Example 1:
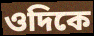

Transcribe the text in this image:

ওদিকে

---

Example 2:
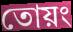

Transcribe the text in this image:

তোয়ং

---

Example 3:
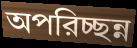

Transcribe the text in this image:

অপরিচ্ছন্ন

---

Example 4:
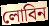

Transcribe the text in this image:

লোবিন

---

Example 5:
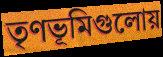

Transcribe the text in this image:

তৃণভূমিগুলোয়